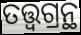
ତତ୍ତ୍ୱଗ୍ରନ୍ଥ